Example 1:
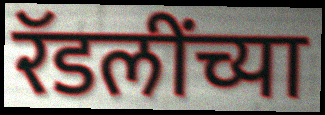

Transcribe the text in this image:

रॅडलींच्या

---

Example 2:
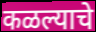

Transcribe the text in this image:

कळल्याचे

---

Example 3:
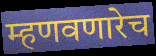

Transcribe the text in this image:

म्हणवणारेच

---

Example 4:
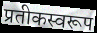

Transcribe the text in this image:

प्रतीकस्वरूप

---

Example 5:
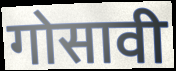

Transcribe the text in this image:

गोसावी